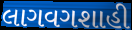
લાગવગશાહી